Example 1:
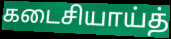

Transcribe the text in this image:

கடைசியாய்த்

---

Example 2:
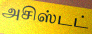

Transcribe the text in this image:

அசிஸ்டட்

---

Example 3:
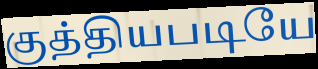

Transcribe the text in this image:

குத்தியபடியே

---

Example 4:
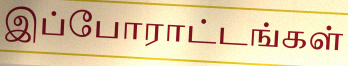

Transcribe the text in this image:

இப்போராட்டங்கள்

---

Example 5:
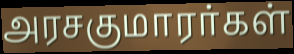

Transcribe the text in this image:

அரசகுமாரர்கள்